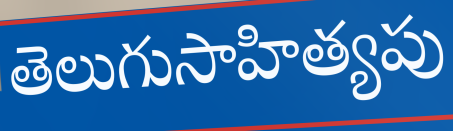
తెలుగుసాహిత్యపు